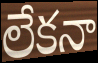
లేకనా